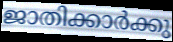
ജാതിക്കാർക്കു